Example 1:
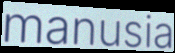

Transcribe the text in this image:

manusia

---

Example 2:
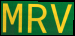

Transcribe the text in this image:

MRV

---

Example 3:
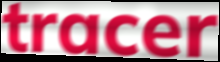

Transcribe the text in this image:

tracer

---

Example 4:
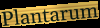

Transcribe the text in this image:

Plantarum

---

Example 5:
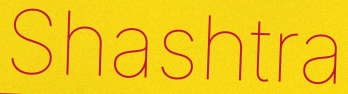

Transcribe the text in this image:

Shashtra